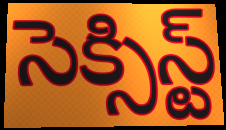
సెక్సిస్ట్